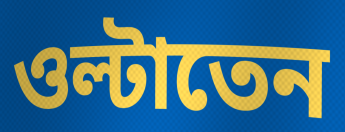
ওল্টাতেন